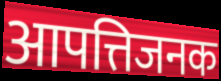
आपत्तिजनक